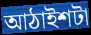
আঠাইশটা